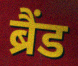
ब्रैंड